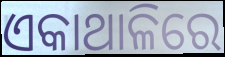
ଏକାଥାଳିରେ